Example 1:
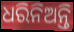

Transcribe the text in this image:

ଧରିନିଅନ୍ତି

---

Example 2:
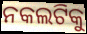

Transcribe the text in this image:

ନକଲଟିକୁ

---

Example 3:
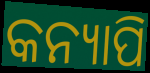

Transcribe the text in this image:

କନ୍ୟାପି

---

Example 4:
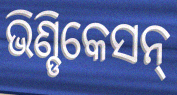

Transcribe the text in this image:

ଭିଣ୍ଡିକେସନ୍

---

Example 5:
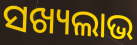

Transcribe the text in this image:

ସଖ୍ୟଲାଭ